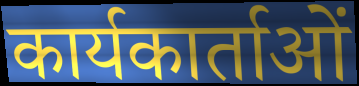
कार्यकार्ताओं